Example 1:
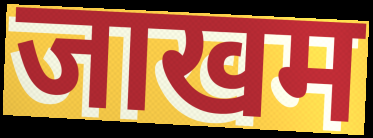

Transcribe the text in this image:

जाखम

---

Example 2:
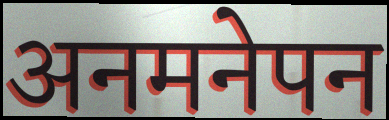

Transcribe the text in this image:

अनमनेपन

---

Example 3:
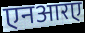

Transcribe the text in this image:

एनआरए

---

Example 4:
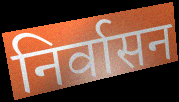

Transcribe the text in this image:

निर्वासन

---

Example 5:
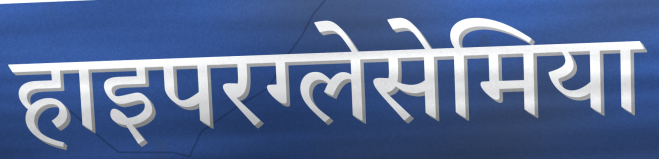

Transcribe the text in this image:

हाइपरग्लेसेमिया